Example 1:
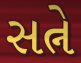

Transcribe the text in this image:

સત્ને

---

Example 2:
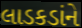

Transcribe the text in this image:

લાડકડાંને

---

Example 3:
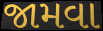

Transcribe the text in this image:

જામવા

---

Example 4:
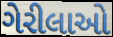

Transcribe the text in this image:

ગેરીલાઓ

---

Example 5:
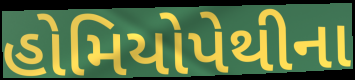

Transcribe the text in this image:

હોમિયોપેથીના